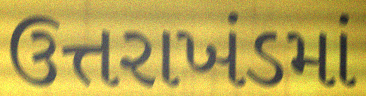
ઉત્તરાખંડમાં